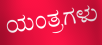
ಯಂತ್ರಗಳು